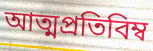
আত্মপ্রতিবিম্ব